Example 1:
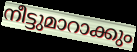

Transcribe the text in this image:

നീട്ടുമാറാക്കും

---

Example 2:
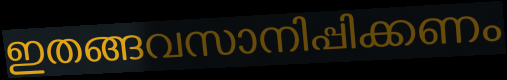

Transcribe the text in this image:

ഇതങ്ങവസാനിപ്പിക്കണം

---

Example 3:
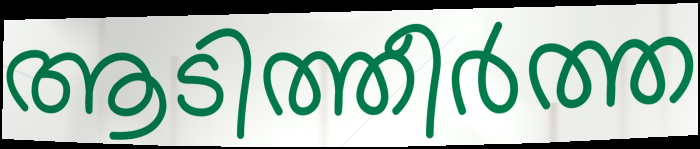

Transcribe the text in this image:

ആടിത്തീർത്ത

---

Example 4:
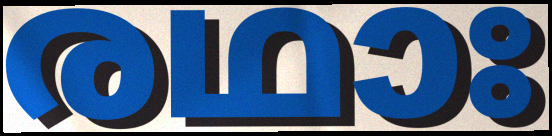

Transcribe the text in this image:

രഥാഃ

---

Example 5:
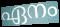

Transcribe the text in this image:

ഏനം